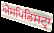
ਐਸਪਿਡਿਸਟ੍ਰਾ